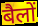
बैलों